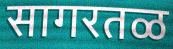
सागरतळ